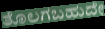
ತೊಲಗಬಹುದೇ